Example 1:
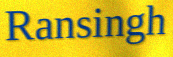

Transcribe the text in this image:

Ransingh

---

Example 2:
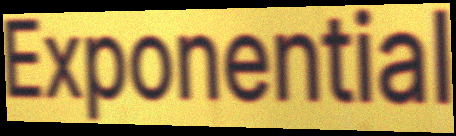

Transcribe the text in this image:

Exponential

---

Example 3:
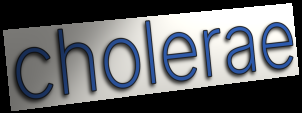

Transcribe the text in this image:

cholerae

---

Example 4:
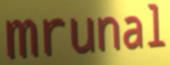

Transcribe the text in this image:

mrunal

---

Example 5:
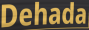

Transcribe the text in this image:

Dehada